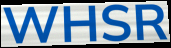
WHSR